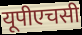
यूपीएचसी